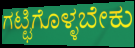
ಗಟ್ಟಿಗೊಳ್ಳಬೇಕು